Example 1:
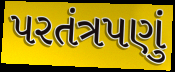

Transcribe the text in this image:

પરતંત્રપણું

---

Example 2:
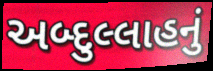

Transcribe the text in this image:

અબ્દુલ્લાહનું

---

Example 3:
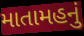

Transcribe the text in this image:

માતામહનું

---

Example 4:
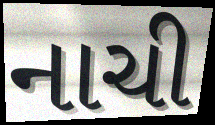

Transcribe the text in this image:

નાચી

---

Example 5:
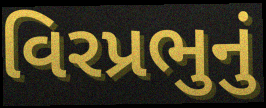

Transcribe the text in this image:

વિરપ્રભુનું